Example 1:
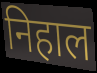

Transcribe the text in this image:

निहाल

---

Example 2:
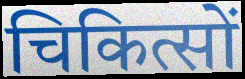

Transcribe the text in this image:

चिकित्सों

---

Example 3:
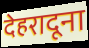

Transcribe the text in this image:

देहरादूना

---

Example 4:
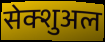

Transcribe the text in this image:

सेक्शुअल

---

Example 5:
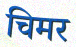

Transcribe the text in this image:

चिमर